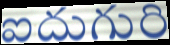
ఐదుగురి